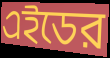
এইডের